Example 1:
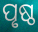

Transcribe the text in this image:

ପୃଷ୍ଠ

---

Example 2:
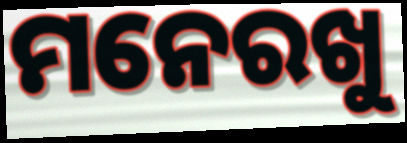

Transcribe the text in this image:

ମନେରଖୁ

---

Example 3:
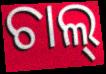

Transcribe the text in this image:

ଚାଲ୍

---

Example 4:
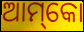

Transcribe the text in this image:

ଆମ୍‌କୋ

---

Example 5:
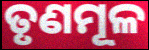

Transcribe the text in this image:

ତୃଣମୂଳ